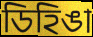
ডিহিঙা